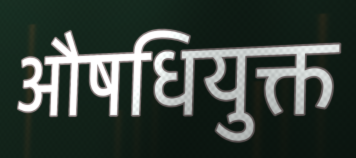
औषधियुक्त